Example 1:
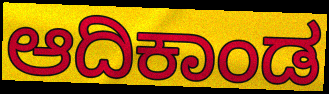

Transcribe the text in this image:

ಆದಿಕಾಂಡ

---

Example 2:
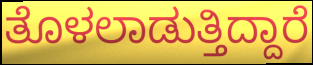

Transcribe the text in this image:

ತೊಳಲಾಡುತ್ತಿದ್ದಾರೆ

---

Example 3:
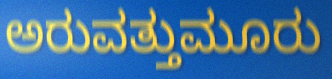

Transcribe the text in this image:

ಅರುವತ್ತುಮೂರು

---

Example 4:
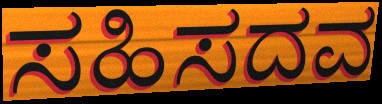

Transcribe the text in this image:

ಸಹಿಸದವ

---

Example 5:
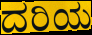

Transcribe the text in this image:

ದರಿಯ